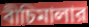
বীচিমালার